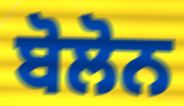
ਬੋਲੋਨ